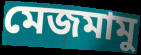
মেজমামু